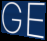
GE